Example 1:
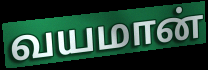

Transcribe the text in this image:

வயமான்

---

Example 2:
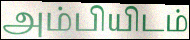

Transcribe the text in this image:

அம்பியிடம்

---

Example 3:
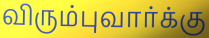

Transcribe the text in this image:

விரும்புவார்க்கு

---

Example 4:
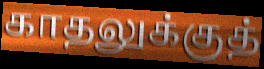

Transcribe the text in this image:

காதலுக்குத்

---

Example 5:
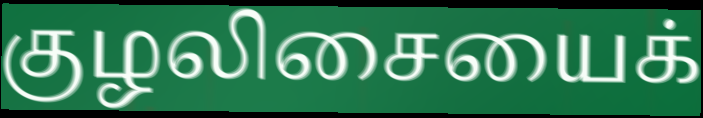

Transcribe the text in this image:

குழலிசையைக்